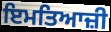
ਇਮਤਿਆਜ਼ੀ